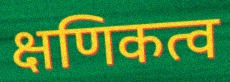
क्षणिकत्व